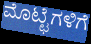
ಮೊಟ್ಟೆಗಳಿಗೆ